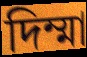
দিম্মা